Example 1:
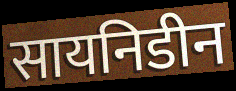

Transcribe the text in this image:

सायनिडीन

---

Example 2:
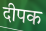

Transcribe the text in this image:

दीपक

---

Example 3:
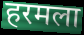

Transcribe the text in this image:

हरमला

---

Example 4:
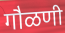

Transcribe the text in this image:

गौळणी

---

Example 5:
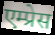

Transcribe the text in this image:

एम्प्रेस